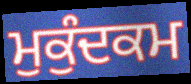
ਮੁਕੁੰਦਕਮ